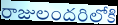
రాజులందరిలోకి